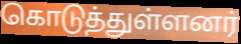
கொடுத்துள்ளனர்